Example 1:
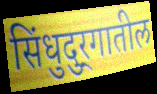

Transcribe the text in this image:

सिंधुदुर्गातील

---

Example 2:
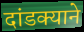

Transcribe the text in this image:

दांडक्याने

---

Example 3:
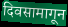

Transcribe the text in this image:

दिवसामागून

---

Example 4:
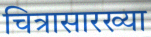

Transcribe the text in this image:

चित्रासारख्या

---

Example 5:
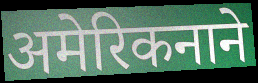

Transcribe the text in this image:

अमेरिकनाने